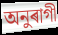
অনুৰাগী